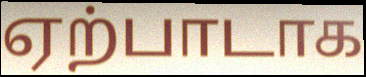
ஏற்பாடாக